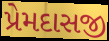
પ્રેમદાસજી